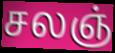
சலஞ்